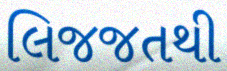
લિજજતથી